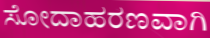
ಸೋದಾಹರಣವಾಗಿ